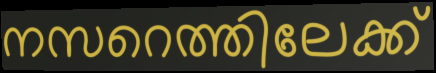
നസറെത്തിലേക്ക്